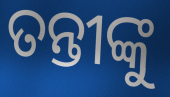
ତନ୍ତୀଙ୍କୁ